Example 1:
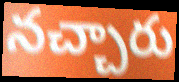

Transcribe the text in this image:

నచ్చారు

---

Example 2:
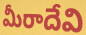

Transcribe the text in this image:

మీరాదేవి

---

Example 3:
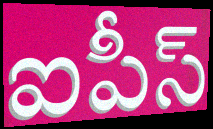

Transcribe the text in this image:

ఐపీస్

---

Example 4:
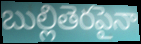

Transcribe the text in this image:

బుల్లితెరపైనా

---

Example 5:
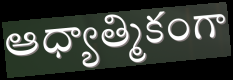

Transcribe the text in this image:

ఆధ్యాత్మికంగా